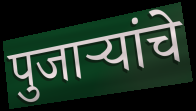
पुजाऱ्यांचे